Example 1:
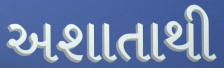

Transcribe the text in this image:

અશાતાથી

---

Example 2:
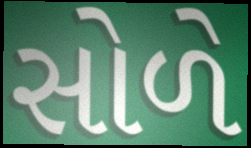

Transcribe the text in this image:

સોળે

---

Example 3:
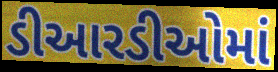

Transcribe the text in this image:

ડીઆરડીઓમાં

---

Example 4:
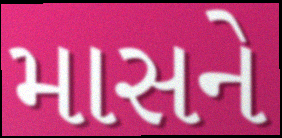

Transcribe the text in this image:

માસને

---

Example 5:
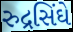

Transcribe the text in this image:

રુદ્રસિંઘે